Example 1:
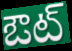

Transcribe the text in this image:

ఔట్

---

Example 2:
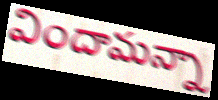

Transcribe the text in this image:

విందామన్నా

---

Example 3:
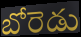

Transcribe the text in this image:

బోరెడు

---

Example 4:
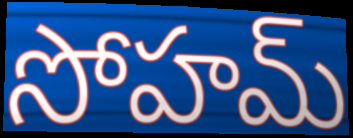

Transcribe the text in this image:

సోహమ్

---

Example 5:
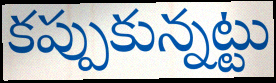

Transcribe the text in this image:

కప్పుకున్నట్టు